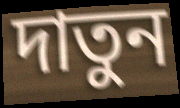
দাতুন